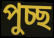
পুচ্ছ